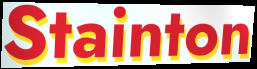
Stainton